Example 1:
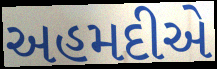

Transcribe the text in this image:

અહમદીએ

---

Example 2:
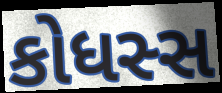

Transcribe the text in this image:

કોધસ્સ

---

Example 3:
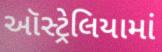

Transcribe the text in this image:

ઑસ્ટ્રેલિયામાં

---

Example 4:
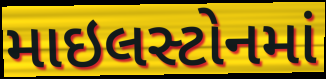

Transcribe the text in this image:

માઇલસ્ટોનમાં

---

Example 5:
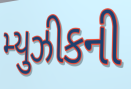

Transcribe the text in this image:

મ્યુઝીકની